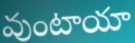
వుంటాయా